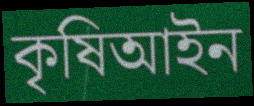
কৃষিআইন